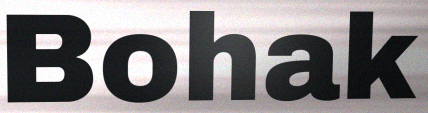
Bohak